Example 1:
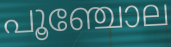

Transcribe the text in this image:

പൂഞ്ചോല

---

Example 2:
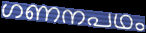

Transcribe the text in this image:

ഗണനപഥം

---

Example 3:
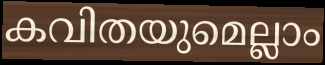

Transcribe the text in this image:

കവിതയുമെല്ലാം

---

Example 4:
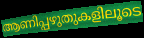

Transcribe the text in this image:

ആണിപ്പഴുതുകളിലൂടെ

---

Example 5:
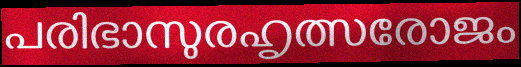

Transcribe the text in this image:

പരിഭാസുരഹൃത്സരോജം